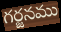
గర్జనము